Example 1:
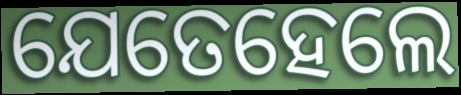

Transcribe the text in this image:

ଯେତେହେଲେ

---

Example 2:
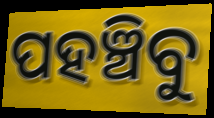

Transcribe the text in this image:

ପହଞ୍ଚିବୁ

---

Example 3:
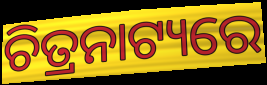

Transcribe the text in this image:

ଚିତ୍ରନାଟ୍ୟରେ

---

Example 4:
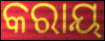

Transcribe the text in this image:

କରାୟ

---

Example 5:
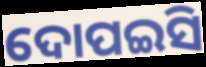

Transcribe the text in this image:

ଦୋପଇସି